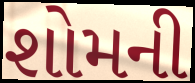
શોમની